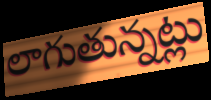
లాగుతున్నట్లు